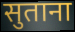
सुताना